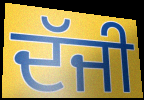
ਦੱਜੀ